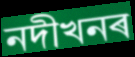
নদীখনৰ